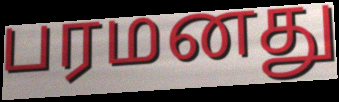
பரமனது